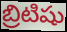
బ్రిటిషు